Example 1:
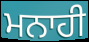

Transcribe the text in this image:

ਮਨਾਹੀ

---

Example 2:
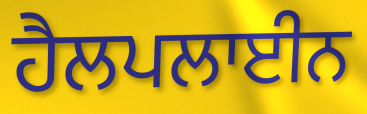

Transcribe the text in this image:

ਹੈਲਪਲਾਈਨ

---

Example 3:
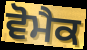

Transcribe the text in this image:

ਵੋਮੈਕ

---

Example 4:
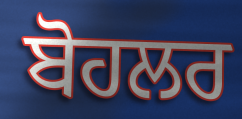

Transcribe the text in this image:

ਬੋਹਲਰ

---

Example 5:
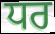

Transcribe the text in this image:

ਧਰ